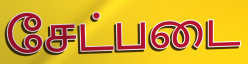
சேட்படை